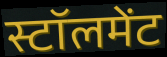
स्टॉलमेंट